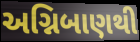
અગ્નિબાણથી